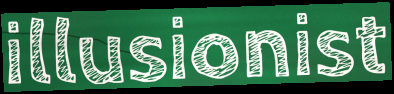
illusionist